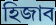
হিজাব